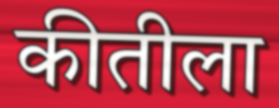
कीतीला